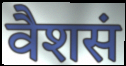
वैशसं